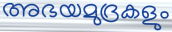
അഭയമുദ്രകളും